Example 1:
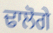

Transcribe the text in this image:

ਢਾਲੋਗੇ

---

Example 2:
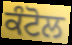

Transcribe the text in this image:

ਕੰਟੋਲ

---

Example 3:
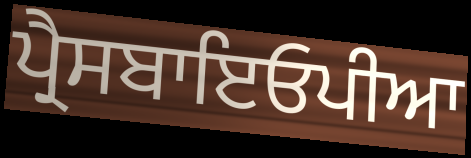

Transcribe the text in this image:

ਪ੍ਰੈਸਬਾਇਓਪੀਆ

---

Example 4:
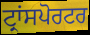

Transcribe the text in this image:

ਟ੍ਰਾਂਸਪੋਰਟਰ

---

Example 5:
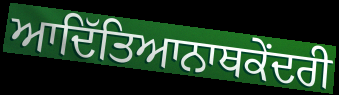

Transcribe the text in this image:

ਆਦਿੱਤਿਆਨਾਥਕੇਂਦਰੀ